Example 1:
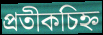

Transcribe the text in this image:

প্ৰতীকচিহ্ন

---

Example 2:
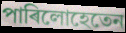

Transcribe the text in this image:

পাৰিলোহেতেন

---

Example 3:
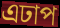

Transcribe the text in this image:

এঢাপ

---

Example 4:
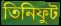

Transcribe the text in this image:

তিনিফুট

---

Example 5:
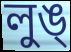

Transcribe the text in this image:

লুঙ্